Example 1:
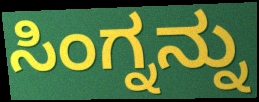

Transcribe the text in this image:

ಸಿಂಗ್ನನ್ನು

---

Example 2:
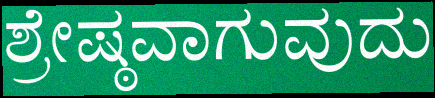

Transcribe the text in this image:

ಶ್ರೇಷ್ಠವಾಗುವುದು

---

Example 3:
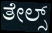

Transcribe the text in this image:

ತೇಲ್ಸ್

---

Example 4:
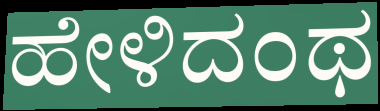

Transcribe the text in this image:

ಹೇಳಿದಂಥ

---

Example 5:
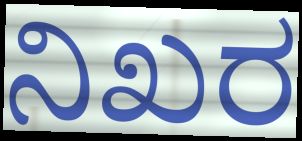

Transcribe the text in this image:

ನಿಖರ